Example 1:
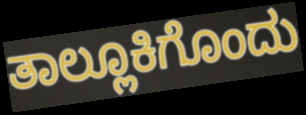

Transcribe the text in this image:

ತಾಲ್ಲೂಕಿಗೊಂದು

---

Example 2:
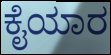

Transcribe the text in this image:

ಕೈಯಾರ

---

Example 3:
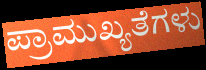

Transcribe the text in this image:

ಪ್ರಾಮುಖ್ಯತೆಗಳು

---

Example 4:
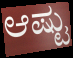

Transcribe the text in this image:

ಆಷ್ಟು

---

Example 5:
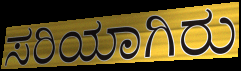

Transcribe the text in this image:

ಸರಿಯಾಗಿರು